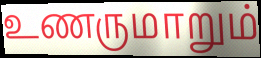
உணருமாறும்